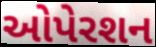
ઓપેરશન